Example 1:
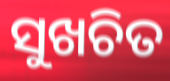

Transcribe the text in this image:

ସୁଖଚିତ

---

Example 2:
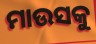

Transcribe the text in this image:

ମାଉସକୁ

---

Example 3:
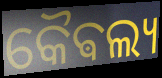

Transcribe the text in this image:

କୈଵଲ୍ୟ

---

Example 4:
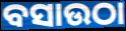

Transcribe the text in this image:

ବସାଉଠା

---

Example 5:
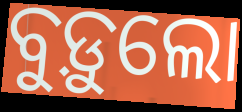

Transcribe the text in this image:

ବୁଡ଼ୁଲୋ